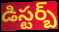
డిస్టర్బ్